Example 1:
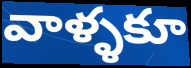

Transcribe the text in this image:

వాళ్ళకూ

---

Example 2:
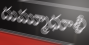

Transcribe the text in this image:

దుమ్మూధూళీ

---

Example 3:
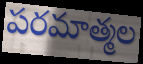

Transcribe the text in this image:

పరమాత్మల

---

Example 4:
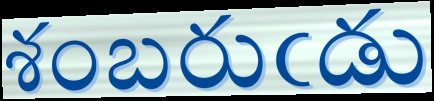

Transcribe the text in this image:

శంబరుఁడు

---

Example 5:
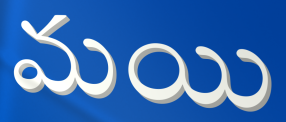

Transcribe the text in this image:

మయి